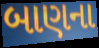
બાણના